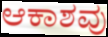
ಆಕಾಶವು